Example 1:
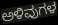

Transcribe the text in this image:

ಅಳಿವುಗಳ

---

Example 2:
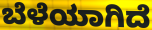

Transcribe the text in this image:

ಬೆಳೆಯಾಗಿದೆ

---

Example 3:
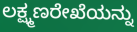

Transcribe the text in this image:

ಲಕ್ಷ್ಮಣರೇಖೆಯನ್ನು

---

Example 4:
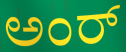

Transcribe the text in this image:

ಅಂರ್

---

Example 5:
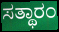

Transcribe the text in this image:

ಸತ್ಥಾರಂ